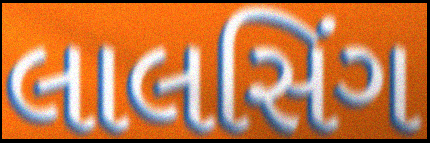
લાલસિંગ